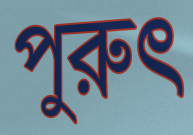
পুরুৎ